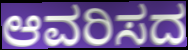
ಆವರಿಸದ